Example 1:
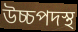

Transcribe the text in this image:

উচ্চপদস্থ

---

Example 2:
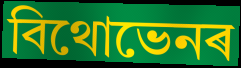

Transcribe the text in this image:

বিথোভেনৰ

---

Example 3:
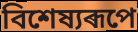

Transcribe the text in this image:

বিশেষ্যৰূপে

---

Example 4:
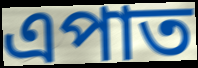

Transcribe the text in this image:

এপাত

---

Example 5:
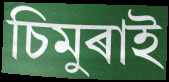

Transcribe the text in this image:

চিমুৰাই